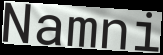
Namni